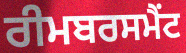
ਰੀਮਬਰਸਮੈਂਟ